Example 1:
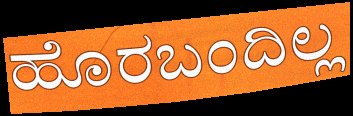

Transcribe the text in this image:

ಹೊರಬಂದಿಲ್ಲ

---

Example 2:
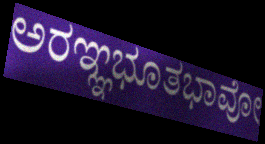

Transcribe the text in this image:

ಅರಞ್ಞಭೂತಭಾವೋ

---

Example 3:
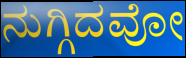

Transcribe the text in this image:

ನುಗ್ಗಿದವೋ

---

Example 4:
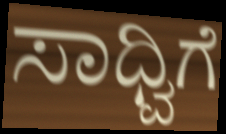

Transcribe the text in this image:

ಸಾಧ್ವಿಗೆ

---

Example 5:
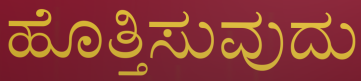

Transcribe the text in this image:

ಹೊತ್ತಿಸುವುದು